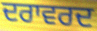
ਦਰਾਵਰਦ